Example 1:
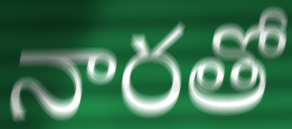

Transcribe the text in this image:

నారతో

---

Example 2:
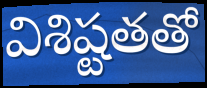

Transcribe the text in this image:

విశిష్టతతో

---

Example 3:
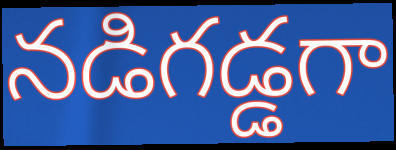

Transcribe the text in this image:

నడిగడ్డగా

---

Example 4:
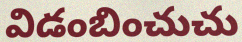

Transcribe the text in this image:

విడంబించుచు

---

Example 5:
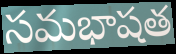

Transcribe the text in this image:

సమభాషత